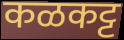
कळकट्ट